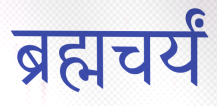
ब्रह्मचर्यं